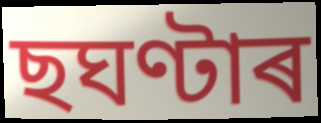
ছঘণ্টাৰ